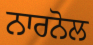
ਨਾਰਨੋਲ